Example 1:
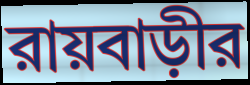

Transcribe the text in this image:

রায়বাড়ীর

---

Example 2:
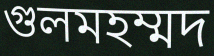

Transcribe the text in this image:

গুলমহম্মদ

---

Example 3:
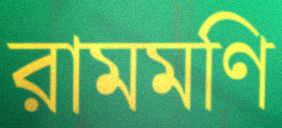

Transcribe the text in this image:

রামমণি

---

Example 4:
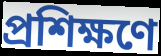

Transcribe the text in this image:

প্রশিক্ষণে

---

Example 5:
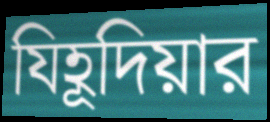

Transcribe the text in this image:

যিহূদিয়ার